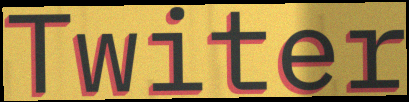
Twiter